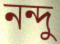
নন্দু